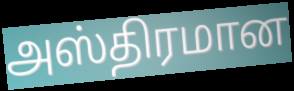
அஸ்திரமான